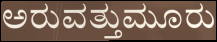
ಅರುವತ್ತುಮೂರು